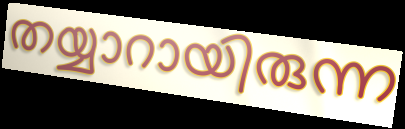
തയ്യാറായിരുന്ന